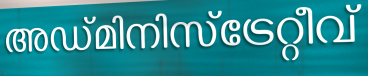
അഡ്മിനിസ്ട്രേറ്റീവ്